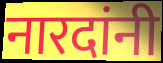
नारदांनी